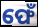
ଫେଁ